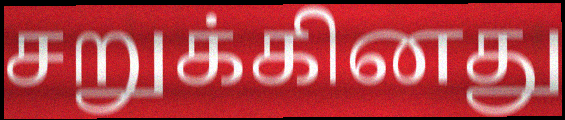
சறுக்கினது